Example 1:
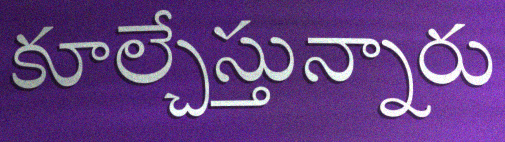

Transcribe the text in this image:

కూల్చేస్తున్నారు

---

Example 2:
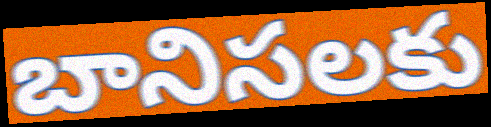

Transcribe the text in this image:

బానిసలకు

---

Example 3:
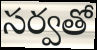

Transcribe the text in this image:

సర్వతో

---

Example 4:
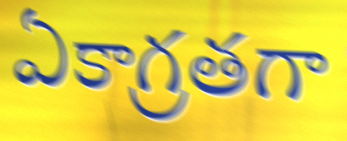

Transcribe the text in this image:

ఏకాగ్రతగా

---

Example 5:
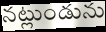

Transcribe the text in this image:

నట్లుండును